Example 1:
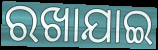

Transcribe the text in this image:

ରଖାଯାଇ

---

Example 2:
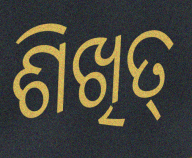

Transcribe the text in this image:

ଶିଖିତ୍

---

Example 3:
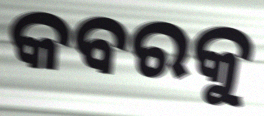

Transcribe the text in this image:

କବରକୁ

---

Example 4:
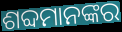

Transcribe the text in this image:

ଶବ୍ଦମାନଙ୍କର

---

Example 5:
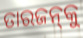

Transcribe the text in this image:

ତାରଜନ୍‌କୁ